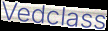
Vedclass